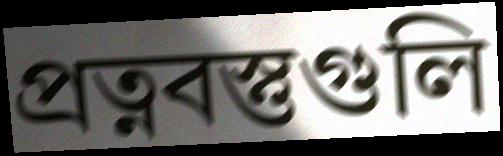
প্রত্নবস্তুগুলি